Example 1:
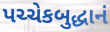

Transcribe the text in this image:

પચ્ચેકબુદ્ધાનં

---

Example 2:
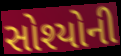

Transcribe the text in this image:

સોશ્યોની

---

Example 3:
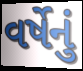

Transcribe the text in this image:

વર્ષેનું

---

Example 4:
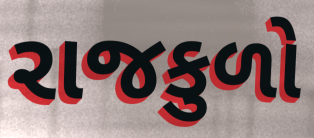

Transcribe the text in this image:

રાજકુળો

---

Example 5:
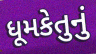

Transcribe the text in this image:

ધૂમકેતુનું